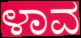
ಳಾವ